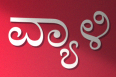
ವ್ಯಾಳಿ